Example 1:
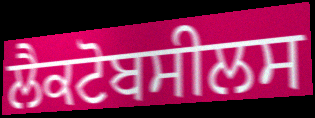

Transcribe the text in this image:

ਲੈਕਟੋਬਸੀਲਸ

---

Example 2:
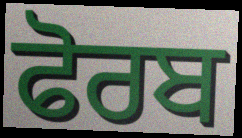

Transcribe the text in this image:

ਫੋਰਬ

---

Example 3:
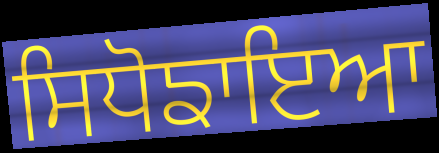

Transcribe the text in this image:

ਸਿਧੋਙਾਇਆ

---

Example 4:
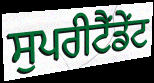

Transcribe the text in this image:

ਸੁਪਰੀਟੈਂਡੇਂਟ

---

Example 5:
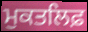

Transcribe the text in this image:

ਮੁਕਤਲਿਫ਼